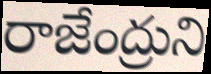
రాజేంద్రుని